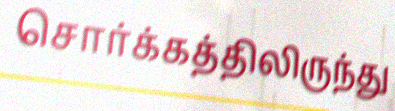
சொர்க்கத்திலிருந்து